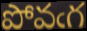
పోవఁగ